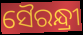
ସୈରନ୍ଧ୍ରୀ